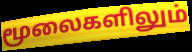
மூலைகளிலும்